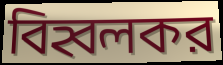
বিহ্বলকর